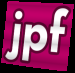
jpf